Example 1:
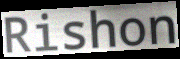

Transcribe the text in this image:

Rishon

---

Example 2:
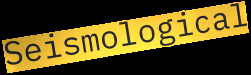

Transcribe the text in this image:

Seismological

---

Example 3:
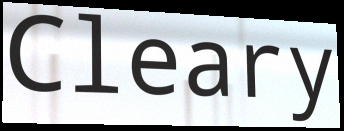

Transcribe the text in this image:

Cleary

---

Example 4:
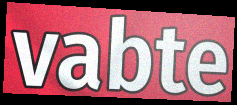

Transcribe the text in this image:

vabte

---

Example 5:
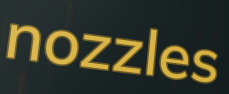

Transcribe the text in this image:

nozzles